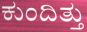
ಕುಂದಿತ್ತು